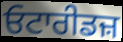
ਓਟਾਰੀਡਜ਼